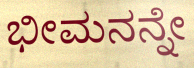
ಭೀಮನನ್ನೇ